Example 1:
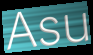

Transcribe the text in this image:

Asu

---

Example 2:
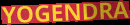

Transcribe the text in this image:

YOGENDRA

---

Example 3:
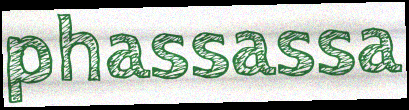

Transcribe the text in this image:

phassassa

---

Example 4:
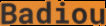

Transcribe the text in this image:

Badiou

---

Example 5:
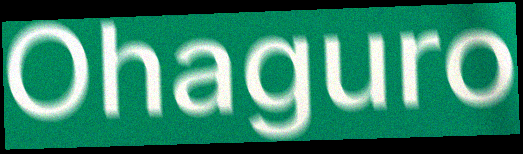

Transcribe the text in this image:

Ohaguro